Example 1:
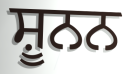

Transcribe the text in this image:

ਸ਼ੂਨਨ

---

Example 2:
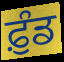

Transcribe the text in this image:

ਫ਼ੁੰਡ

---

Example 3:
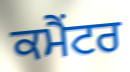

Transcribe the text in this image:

ਕਮੈਂਟਰ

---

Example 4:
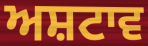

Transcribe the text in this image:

ਅਸ਼ਟਾਵ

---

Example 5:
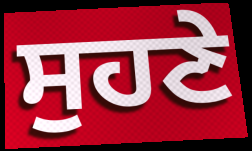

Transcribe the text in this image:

ਸੁਹਣੇ